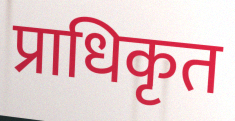
प्राधिकृत